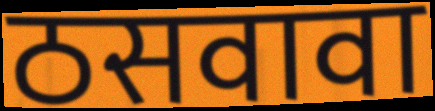
ठसवावा